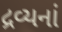
દ્રવ્યનાં